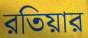
রতিয়ার